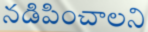
నడిపించాలని